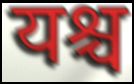
यश्च